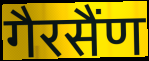
गैरसैंण